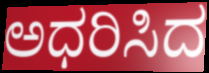
ಅಧರಿಸಿದ